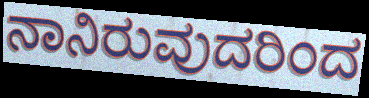
ನಾನಿರುವುದರಿಂದ